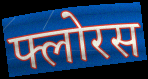
फ्लोरस